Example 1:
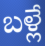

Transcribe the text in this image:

బళ్లే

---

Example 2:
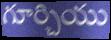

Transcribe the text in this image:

గూర్చియు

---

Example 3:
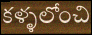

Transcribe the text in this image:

కళ్ళలోంచి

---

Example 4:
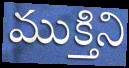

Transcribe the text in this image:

ముక్తిని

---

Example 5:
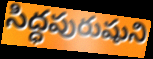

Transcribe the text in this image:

సిద్ధపురుషుని